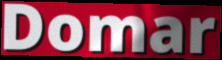
Domar